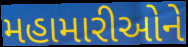
મહામારીઓને